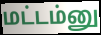
மட்டம்னு